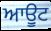
ਆਉੂਟ